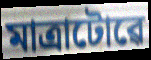
মাত্ৰাটোৱে